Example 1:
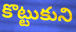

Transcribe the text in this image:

కొట్టుకుని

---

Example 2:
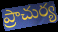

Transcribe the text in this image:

ప్రాచుర్య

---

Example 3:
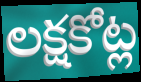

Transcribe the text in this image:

లక్షకోట్ల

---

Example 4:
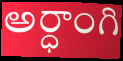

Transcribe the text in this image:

అర్ధాంగి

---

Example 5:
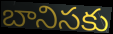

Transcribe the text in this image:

బానిసకు